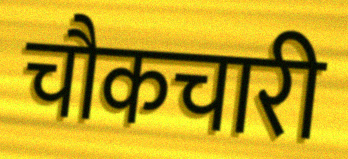
चौकचारी